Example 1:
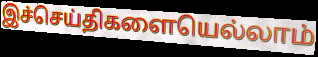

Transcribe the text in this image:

இச்செய்திகளையெல்லாம்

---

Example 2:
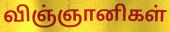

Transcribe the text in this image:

விஞ்ஞானிகள்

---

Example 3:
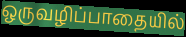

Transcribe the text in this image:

ஒருவழிப்பாதையில்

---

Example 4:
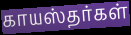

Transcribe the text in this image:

காயஸ்தர்கள்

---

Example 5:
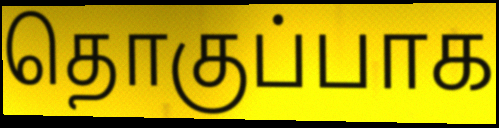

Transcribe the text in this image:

தொகுப்பாக